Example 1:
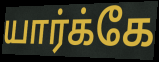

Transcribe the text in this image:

யார்க்கே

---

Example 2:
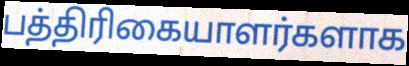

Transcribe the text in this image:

பத்திரிகையாளர்களாக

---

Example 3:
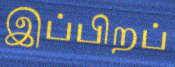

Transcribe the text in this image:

இப்பிறப்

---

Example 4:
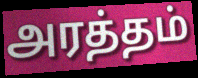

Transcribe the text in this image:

அரத்தம்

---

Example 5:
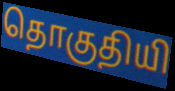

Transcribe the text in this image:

தொகுதியி